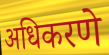
अधिकरणे